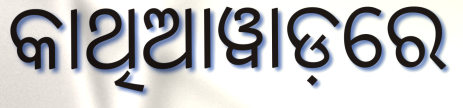
କାଥିଆୱାଡ଼ରେ